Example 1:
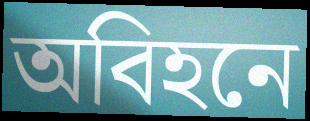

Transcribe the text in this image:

অবিহনে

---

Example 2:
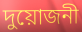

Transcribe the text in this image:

দুয়োজনী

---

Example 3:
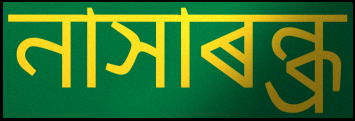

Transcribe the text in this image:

নাসাৰন্ধ্ৰ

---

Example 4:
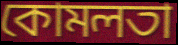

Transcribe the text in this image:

কোমলতা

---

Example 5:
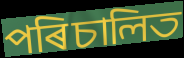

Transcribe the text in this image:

পৰিচালিত